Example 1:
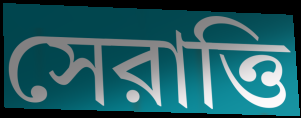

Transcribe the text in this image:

সেরাত্তি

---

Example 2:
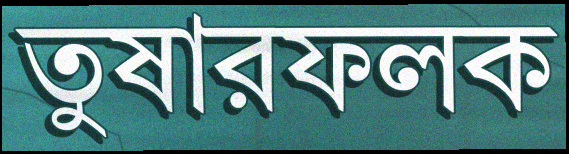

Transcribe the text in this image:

তুষারফলক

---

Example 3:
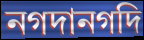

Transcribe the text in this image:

নগদানগদি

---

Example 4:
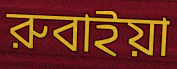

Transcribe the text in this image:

রুবাইয়া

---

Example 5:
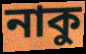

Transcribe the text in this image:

নাকু